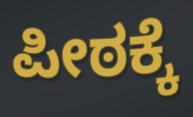
ಪೀಠಕ್ಕೆ